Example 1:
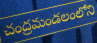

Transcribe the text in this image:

చంద్రమండలంలోని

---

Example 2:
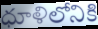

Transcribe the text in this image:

ధూళిలోనికి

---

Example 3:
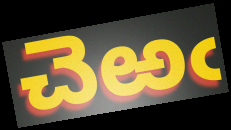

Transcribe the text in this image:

చెఱఁ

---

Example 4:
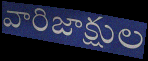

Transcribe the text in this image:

వారిజాక్షుల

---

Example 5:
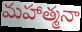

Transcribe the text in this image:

మహాత్మనా